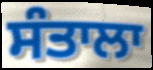
ਸੰਤਾਲਾ